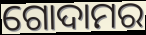
ଗୋଦାମର